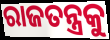
ରାଜତନ୍ତ୍ରକୁ